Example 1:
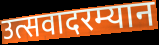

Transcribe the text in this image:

उत्सवादरम्यान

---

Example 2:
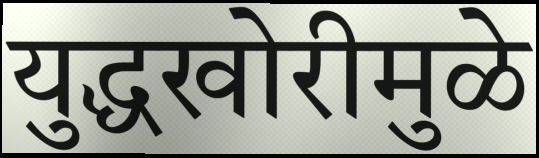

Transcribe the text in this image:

युद्धखोरीमुळे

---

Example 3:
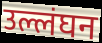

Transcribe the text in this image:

उल्लंघन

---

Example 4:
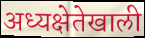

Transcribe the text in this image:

अध्यक्षेतेखाली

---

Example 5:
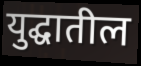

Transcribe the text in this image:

युद्घातील